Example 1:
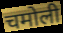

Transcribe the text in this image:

चमोली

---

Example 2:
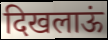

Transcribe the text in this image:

दिखलाऊं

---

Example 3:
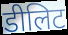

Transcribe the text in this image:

डीलिट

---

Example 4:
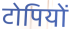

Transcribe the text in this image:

टोपियों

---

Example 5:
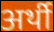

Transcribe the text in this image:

अर्थी